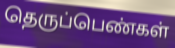
தெருப்பெண்கள்